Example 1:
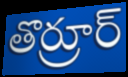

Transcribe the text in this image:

తొర్రూర్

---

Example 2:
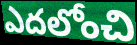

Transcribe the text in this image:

ఎదలోంచి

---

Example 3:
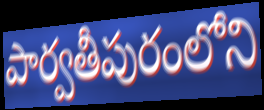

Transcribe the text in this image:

పార్వతీపురంలోని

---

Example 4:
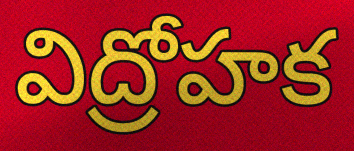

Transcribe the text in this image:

విద్రోహక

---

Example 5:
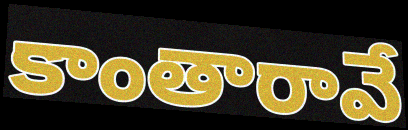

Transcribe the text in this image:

కాంతారావే